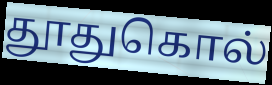
தூதுகொல்